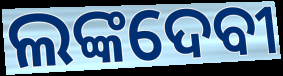
ଲଙ୍କଦେବୀ